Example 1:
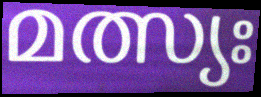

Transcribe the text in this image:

മത്സ്യഃ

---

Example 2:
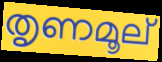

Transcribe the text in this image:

തൃണമൂല്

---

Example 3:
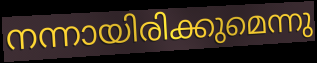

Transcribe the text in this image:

നന്നായിരിക്കുമെന്നു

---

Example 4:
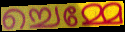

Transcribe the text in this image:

ച്ചെമ്മേ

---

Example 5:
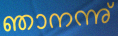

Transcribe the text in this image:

ഞാനന്നു്